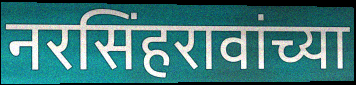
नरसिंहरावांच्या